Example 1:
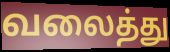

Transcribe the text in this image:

வலைத்து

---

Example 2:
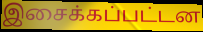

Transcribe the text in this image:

இசைக்கப்பட்டன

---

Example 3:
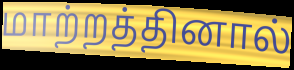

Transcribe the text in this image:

மாற்றத்தினால்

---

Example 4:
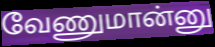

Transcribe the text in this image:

வேணுமான்னு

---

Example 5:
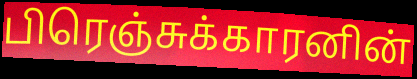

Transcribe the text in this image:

பிரெஞ்சுக்காரனின்